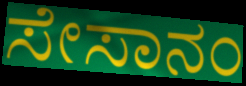
ಸೇಸಾನಂ